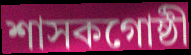
শাসকগোষ্ঠী